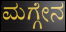
ಮಗ್ಗೇನ